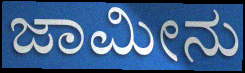
ಜಾಮೀನು